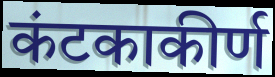
कंटकाकीर्ण